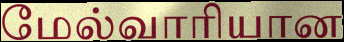
மேல்வாரியான